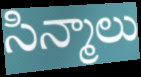
సిన్మాలు